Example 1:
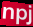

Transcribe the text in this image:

npj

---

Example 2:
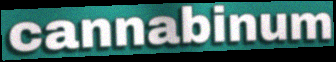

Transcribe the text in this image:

cannabinum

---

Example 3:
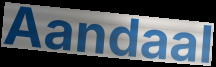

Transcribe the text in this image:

Aandaal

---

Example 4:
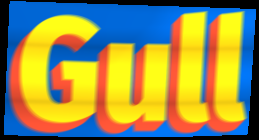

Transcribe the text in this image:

Gull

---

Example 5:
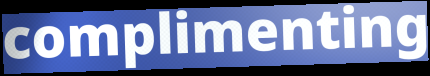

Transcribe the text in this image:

complimenting